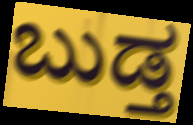
ಬುಡ್ತ